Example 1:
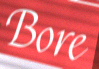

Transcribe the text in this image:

Bore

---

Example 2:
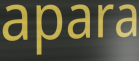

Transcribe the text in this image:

apara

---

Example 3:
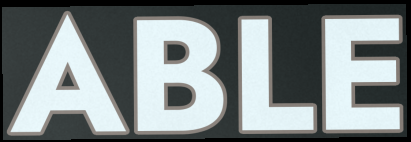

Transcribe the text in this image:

ABLE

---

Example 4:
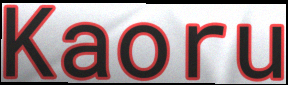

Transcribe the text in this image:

Kaoru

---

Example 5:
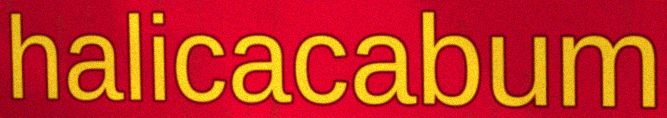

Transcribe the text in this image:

halicacabum